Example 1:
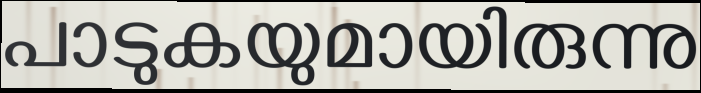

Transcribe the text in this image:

പാടുകയുമായിരുന്നു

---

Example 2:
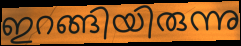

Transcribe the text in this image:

ഇറങ്ങിയിരുന്നു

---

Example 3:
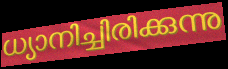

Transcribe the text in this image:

ധ്യാനിച്ചിരിക്കുന്നു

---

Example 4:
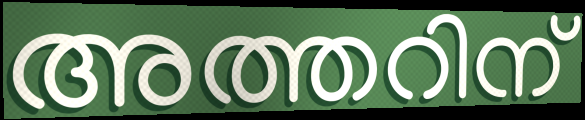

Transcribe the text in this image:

അത്തറിന്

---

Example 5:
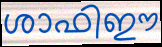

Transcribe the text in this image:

ശാഫിഈ